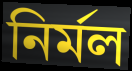
নির্মল